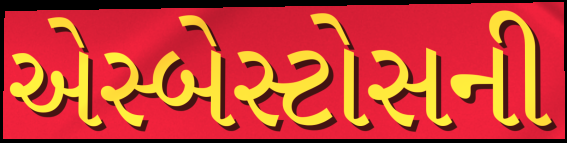
એસ્બેસ્ટોસની